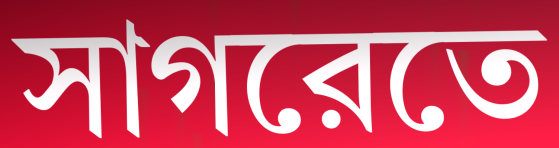
সাগরেতে